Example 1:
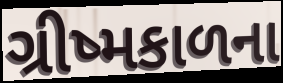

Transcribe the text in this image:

ગ્રીષ્મકાળના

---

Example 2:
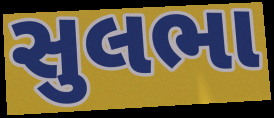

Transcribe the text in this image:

સુલભા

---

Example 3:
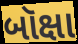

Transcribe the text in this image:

બૉક્ષા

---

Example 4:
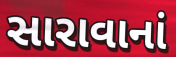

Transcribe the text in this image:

સારાવાનાં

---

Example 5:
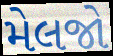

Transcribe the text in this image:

મેલજો